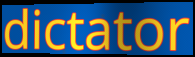
dictator